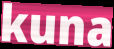
kuna